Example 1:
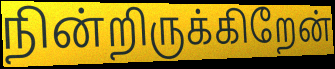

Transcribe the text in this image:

நின்றிருக்கிறேன்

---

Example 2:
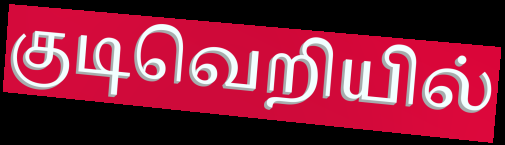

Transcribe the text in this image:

குடிவெறியில்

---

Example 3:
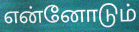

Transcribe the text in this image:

என்னோடும்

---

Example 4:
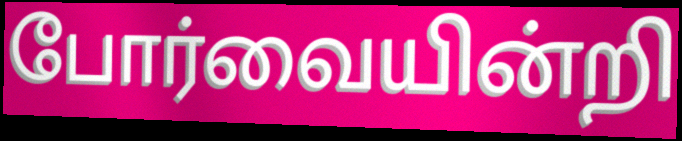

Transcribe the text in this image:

போர்வையின்றி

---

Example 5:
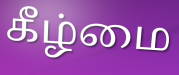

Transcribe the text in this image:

கீழ்மை